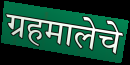
ग्रहमालेचे